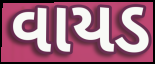
વાયડ